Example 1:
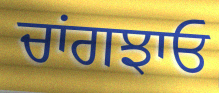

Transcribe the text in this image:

ਚਾਂਗਝਾਓ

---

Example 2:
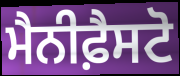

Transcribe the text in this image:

ਮੈਨੀਫ਼ੈਸਟੋ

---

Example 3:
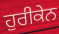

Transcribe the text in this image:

ਹੁਰੀਕੇਨ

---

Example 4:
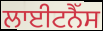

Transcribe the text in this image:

ਲਾਈਟਨੈੱਸ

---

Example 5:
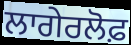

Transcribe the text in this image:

ਲਾਗੇਰਲੋਫ਼